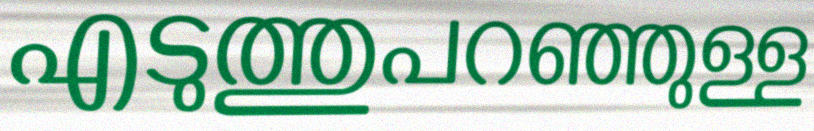
എടുത്തുപറഞ്ഞുള്ള